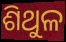
ଶିଥୁଳ